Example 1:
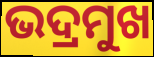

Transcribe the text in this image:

ଭଦ୍ରମୁଖ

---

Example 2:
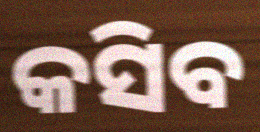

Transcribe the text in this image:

କସିବ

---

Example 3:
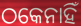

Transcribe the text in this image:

ଠକେନାହିଁ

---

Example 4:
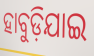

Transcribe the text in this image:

ହାବୁଡ଼ିଯାଇ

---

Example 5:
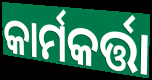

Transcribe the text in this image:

କାର୍ମକର୍ତ୍ତା